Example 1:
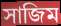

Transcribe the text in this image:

সাজিম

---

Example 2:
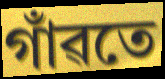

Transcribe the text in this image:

গাঁৱতে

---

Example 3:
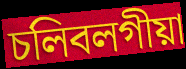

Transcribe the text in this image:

চলিবলগীয়া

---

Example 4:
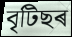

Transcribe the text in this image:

বৃটিছৰ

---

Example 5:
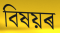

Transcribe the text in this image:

বিষয়ৰ